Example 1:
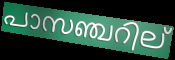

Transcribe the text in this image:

പാസഞ്ചറില്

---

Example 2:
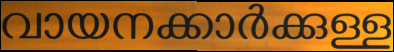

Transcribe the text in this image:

വായനക്കാർക്കുള്ള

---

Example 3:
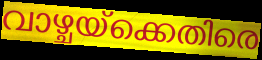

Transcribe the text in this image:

വാഴ്ചയ്‌ക്കെതിരെ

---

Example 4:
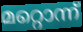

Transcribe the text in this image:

മറ്റൊന്ന്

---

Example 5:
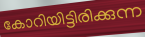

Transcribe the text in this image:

കോറിയിട്ടിരിക്കുന്ന